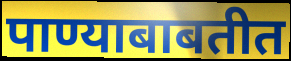
पाण्याबाबतीत